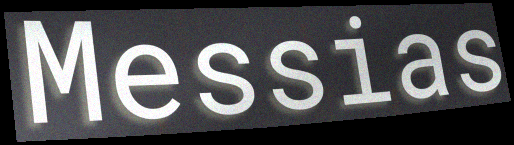
Messias